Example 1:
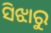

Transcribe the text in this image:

ସିଝାରୁ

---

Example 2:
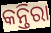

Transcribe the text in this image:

କନ୍ତିରା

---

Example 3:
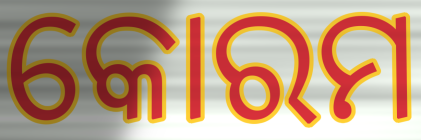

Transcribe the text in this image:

କୋରମ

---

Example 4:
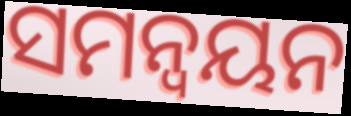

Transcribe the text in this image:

ସମନ୍ୱୟନ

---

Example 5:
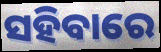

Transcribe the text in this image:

ସହିବାରେ